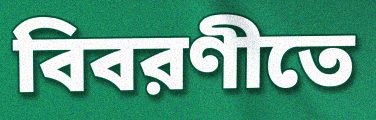
বিবরণীতে